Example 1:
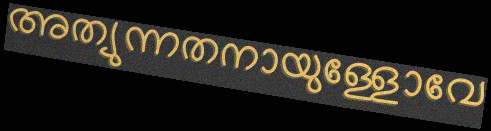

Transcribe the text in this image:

അത്യുന്നതനായുള്ളോവേ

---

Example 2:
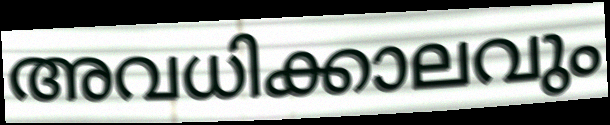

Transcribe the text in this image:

അവധിക്കാലവും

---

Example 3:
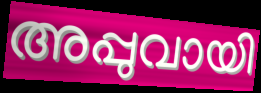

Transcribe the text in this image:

അപ്പുവായി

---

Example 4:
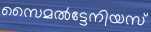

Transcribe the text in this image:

സൈമൽട്ടേനിയസ്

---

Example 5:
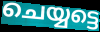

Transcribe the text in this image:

ചെയ്യട്ടെ